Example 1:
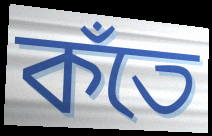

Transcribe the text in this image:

কঁতে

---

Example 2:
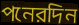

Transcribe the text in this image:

পনেরদিন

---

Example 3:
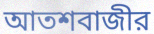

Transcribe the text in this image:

আতশবাজীর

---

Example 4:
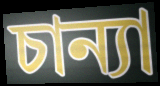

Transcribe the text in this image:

চান্যা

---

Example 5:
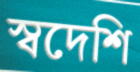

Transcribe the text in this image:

স্বদেশি